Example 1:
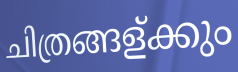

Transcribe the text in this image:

ചിത്രങ്ങള്ക്കും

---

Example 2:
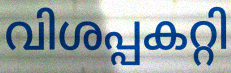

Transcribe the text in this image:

വിശപ്പകറ്റി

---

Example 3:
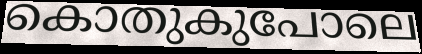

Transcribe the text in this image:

കൊതുകുപോലെ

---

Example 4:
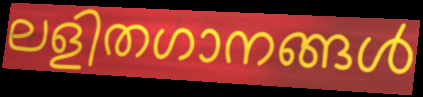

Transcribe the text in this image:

ലളിതഗാനങ്ങൾ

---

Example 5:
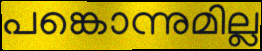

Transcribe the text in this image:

പങ്കൊന്നുമില്ല